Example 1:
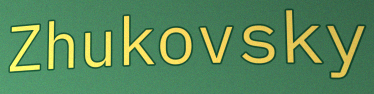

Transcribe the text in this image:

Zhukovsky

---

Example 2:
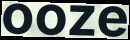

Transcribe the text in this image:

ooze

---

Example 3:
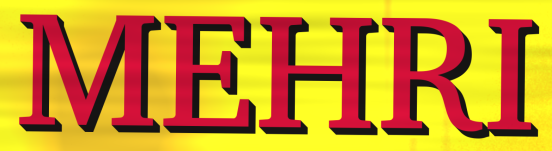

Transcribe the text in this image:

MEHRI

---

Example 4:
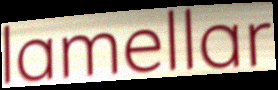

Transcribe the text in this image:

lamellar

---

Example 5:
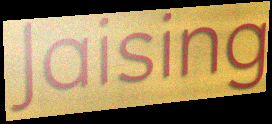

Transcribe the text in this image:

Jaising